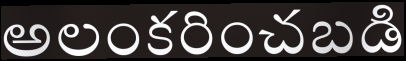
అలంకరించబడి